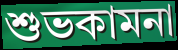
শুভকামনা